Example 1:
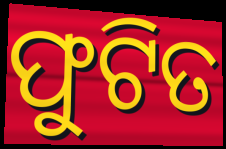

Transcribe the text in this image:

ଫୁଟିତ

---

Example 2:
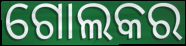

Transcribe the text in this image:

ଗୋଲକର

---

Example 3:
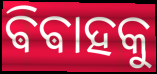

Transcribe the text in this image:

ଵିଵାହକୁ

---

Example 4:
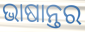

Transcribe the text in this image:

ଭାଷାନ୍ତର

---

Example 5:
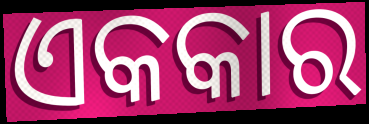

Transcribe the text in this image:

ଏକକାର